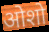
ओशो